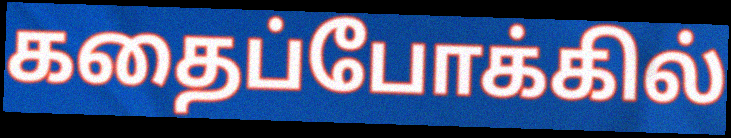
கதைப்போக்கில்